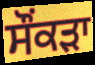
ਸੌਂਕੜਾ